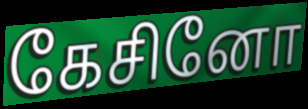
கேசினோ